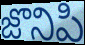
జొనిపి